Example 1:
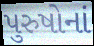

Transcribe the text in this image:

પુરુષોનાં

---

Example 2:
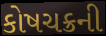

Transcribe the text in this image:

કોષચક્રની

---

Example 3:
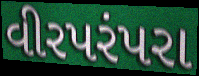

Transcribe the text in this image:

વીરપરંપરા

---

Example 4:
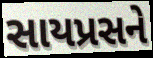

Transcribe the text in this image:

સાયપ્રસને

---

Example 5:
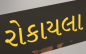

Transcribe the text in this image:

રોકાયલા